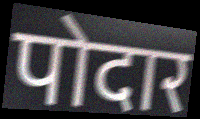
पोदार